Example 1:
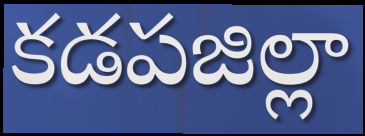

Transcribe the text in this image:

కడపజిల్లా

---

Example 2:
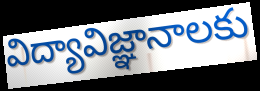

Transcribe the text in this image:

విద్యావిజ్ఞానాలకు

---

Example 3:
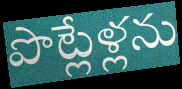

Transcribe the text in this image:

పొట్లేళ్లను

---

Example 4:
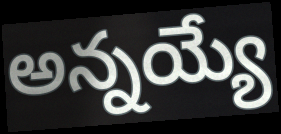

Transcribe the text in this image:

అన్నయ్యే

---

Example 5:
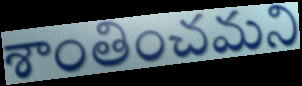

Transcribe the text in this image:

శాంతించమని